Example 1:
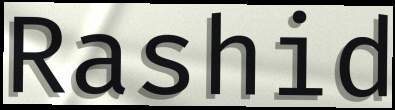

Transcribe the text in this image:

Rashid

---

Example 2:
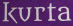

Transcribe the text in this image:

kurta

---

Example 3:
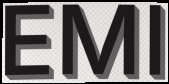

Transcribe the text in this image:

EMI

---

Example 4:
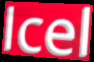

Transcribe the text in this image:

Icel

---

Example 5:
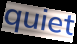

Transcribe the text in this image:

quiet